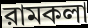
রামকলা